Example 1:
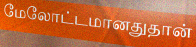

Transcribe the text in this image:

மேலோட்டமானதுதான்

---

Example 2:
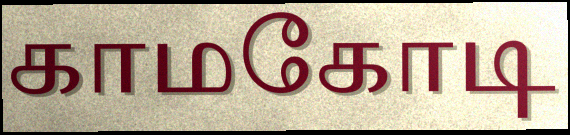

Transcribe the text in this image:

காமகோடி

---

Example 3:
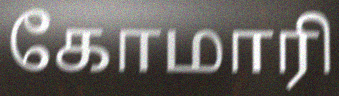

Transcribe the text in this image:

கோமாரி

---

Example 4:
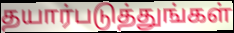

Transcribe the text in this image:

தயார்படுத்துங்கள்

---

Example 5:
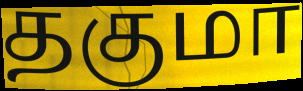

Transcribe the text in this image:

தகுமா